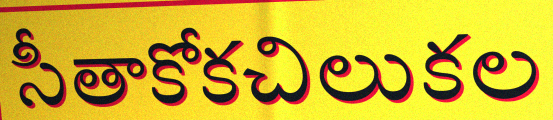
సీతాకోకచిలుకల